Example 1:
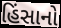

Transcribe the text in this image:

હિંસાનો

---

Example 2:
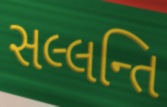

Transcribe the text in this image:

સલ્લન્તિ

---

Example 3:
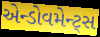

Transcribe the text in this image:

એન્ડોવમેન્ટ્સ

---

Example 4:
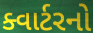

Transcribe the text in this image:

ક્વાર્ટરનો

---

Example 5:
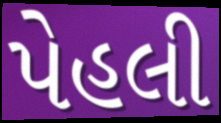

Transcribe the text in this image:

પેહલી